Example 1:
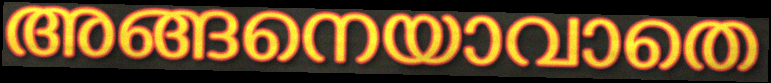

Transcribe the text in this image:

അങ്ങനെയാവാതെ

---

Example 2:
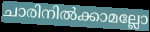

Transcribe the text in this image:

ചാരിനിൽക്കാമല്ലോ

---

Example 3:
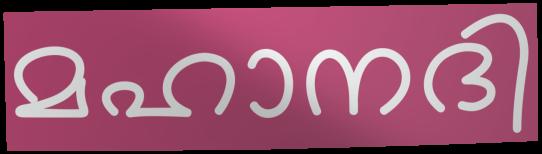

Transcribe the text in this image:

മഹാനദി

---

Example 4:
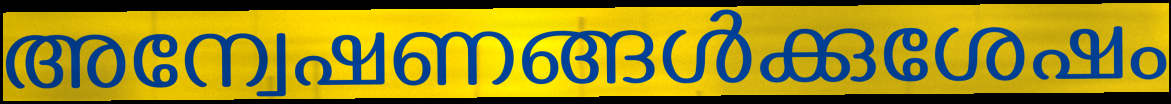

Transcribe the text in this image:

അന്വേഷണങ്ങൾക്കുശേഷം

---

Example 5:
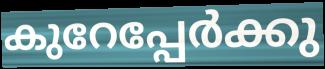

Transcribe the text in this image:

കുറേപ്പേർക്കു